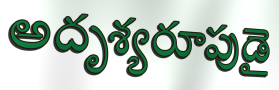
అదృశ్యరూపుడై